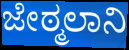
ಜೇಠ್ಮಲಾನಿ